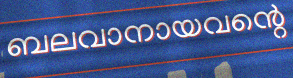
ബലവാനായവന്റെ